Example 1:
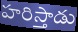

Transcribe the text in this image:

హరిస్తాడు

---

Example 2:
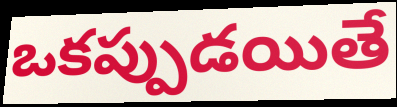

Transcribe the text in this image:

ఒకప్పుడయితే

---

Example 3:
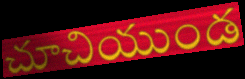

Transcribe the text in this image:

చూచియుండ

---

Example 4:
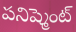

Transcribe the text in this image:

పనిష్మెంట్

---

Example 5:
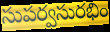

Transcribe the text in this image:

సుపర్వసురభిం